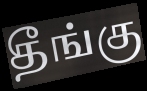
தீங்கு